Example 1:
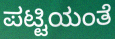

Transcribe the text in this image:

ಪಟ್ಟಿಯಂತೆ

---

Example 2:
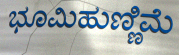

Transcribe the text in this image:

ಭೂಮಿಹುಣ್ಣಿಮೆ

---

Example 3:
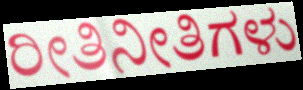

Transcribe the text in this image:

ರೀತಿನೀತಿಗಳು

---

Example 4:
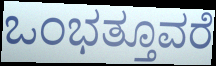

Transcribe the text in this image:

ಒಂಭತ್ತೂವರೆ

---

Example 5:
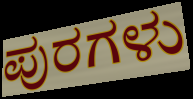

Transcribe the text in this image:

ಪುರಗಳು